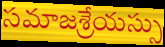
సమాజశ్రేయస్సు